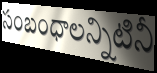
సంబంధాలన్నిటినీ